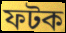
ফটক